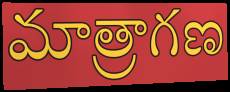
మాత్రాగణ